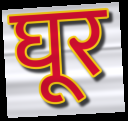
घूर